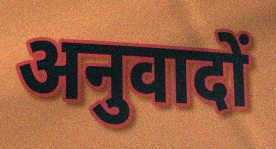
अनुवादों